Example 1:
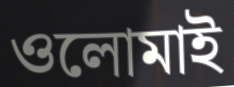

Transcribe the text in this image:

ওলোমাই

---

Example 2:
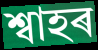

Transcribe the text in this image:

শ্বাহৰ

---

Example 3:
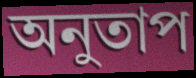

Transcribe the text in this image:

অনুতাপ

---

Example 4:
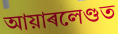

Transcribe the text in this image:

আয়াৰলেণ্ডত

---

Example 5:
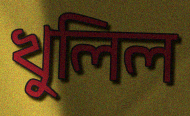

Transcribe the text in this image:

খুলিল